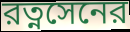
রত্নসেনের